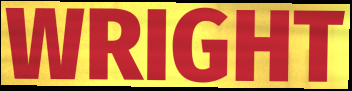
WRIGHT